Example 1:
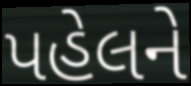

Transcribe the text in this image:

પહેલને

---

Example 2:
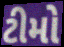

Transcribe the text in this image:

ટીમો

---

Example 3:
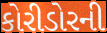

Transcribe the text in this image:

કોરીડોરની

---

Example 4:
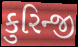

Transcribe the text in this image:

કુરિન્જી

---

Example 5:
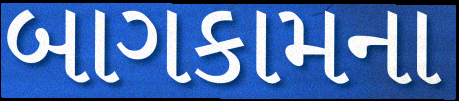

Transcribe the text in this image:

બાગકામના